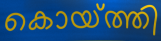
കൊയ്‌ത്തി